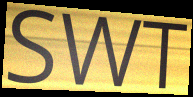
SWT